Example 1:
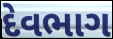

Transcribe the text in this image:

દેવભાગ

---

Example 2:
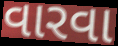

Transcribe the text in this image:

વારવા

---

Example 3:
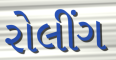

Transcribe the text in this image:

રોલીંગ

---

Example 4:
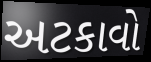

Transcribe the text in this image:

અટકાવો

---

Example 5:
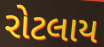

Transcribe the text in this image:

રોટલાય